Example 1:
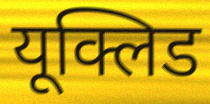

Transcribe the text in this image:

यूक्लिड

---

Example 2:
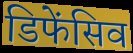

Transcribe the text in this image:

डिफेंसिव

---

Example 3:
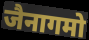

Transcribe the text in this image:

जैनागमो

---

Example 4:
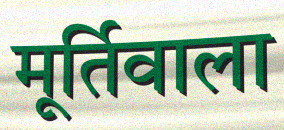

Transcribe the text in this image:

मूर्तिवाला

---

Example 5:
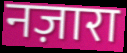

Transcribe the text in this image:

नज़ारा